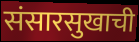
संसारसुखाची